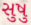
સુષુ